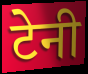
टेनी